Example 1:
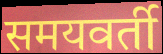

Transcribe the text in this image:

समयवर्ती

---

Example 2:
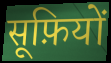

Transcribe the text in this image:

सूफ़ियों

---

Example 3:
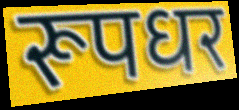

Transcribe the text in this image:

रूपधर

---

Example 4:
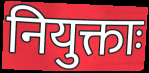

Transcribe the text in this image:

नियुक्ताः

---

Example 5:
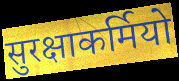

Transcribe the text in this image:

सुरक्षाकर्मियो